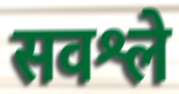
सवश्ले